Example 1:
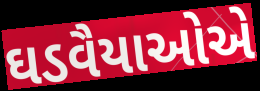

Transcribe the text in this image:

ઘડવૈયાઓએ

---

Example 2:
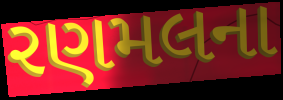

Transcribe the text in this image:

રણમલના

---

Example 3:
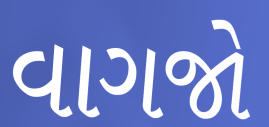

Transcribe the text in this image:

વાગજો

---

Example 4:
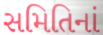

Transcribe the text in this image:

સમિતિનાં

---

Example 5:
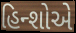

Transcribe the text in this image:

હિન્શોએ